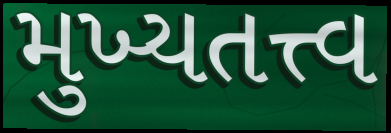
મુખ્યતત્ત્વ